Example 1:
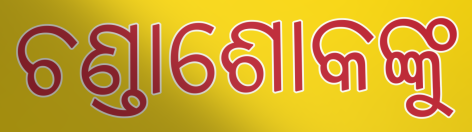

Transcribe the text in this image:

ଚଣ୍ଡାଶୋକଙ୍କୁ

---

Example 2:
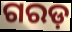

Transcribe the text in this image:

ଗରଡ଼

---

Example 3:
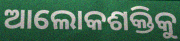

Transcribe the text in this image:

ଆଲୋକଶକ୍ତିକୁ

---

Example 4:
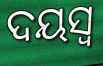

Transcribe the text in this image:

ଦୟସ୍ଵ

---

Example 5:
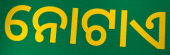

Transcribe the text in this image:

ନୋଟାଏ